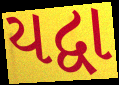
યદ્વા